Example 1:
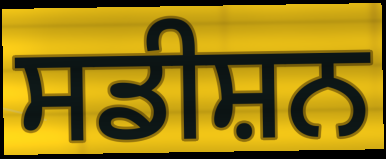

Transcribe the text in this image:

ਸਡੀਸ਼ਨ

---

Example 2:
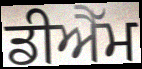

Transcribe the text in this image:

ਡੀਐੱਮ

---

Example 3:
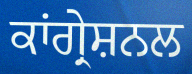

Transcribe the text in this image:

ਕਾਂਗ੍ਰੇਸ਼ਨਲ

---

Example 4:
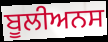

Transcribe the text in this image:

ਬੂਲੀਅਨਸ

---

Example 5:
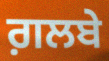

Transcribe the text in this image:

ਗ਼ਲਬੇ